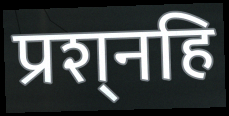
प्रश्नहि